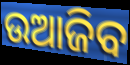
ଉଆଜିବ